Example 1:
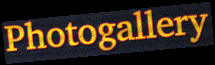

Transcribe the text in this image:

Photogallery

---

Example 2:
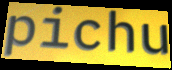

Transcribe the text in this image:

pichu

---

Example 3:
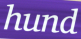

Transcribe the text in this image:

hund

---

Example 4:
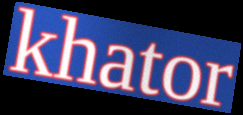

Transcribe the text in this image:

khator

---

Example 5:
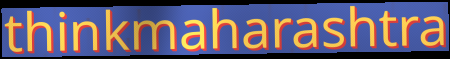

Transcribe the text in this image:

thinkmaharashtra